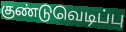
குண்டுவெடிப்பு